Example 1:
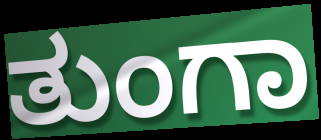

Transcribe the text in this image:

ತುಂಗಾ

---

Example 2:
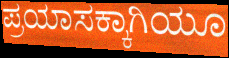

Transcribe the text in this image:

ಪ್ರಯಾಸಕ್ಕಾಗಿಯೂ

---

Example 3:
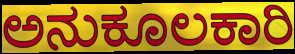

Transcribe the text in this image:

ಅನುಕೂಲಕಾರಿ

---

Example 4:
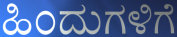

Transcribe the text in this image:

ಹಿಂದುಗಳಿಗೆ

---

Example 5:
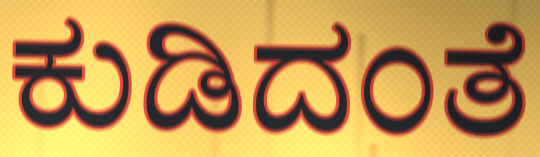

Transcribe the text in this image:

ಕುಡಿದಂತೆ